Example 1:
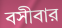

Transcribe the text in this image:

বসীবার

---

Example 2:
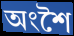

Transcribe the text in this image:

অংশৈ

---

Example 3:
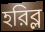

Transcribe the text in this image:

হরিব্ল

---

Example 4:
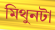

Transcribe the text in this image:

মিথুনটা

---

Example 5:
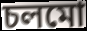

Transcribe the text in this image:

চলমো